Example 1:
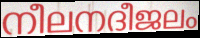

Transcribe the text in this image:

നീലനദീജലം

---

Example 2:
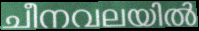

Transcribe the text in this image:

ചീനവലയിൽ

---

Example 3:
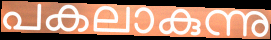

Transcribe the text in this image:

പകലാകുന്നു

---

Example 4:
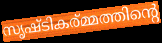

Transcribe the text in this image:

സൃഷ്ടികര്മ്മത്തിന്റെ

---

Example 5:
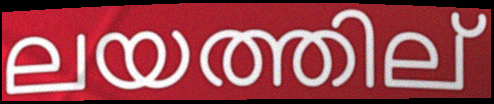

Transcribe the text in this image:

ലയത്തില്